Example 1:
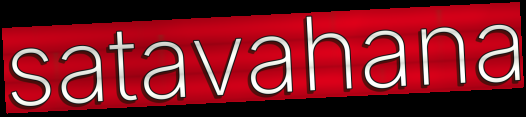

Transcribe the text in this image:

satavahana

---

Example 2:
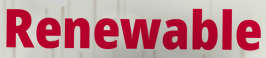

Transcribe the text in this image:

Renewable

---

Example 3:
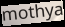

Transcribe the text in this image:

mothya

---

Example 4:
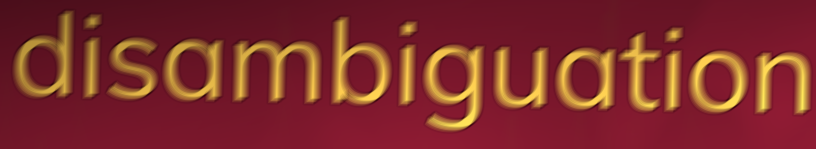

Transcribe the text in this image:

disambiguation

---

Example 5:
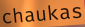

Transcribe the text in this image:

chaukas